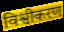
विश्वीकरण